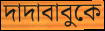
দাদাবাবুকে